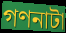
গণনাটা